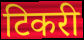
टिकरी